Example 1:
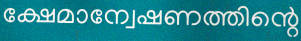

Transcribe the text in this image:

ക്ഷേമാന്വേഷണത്തിന്റെ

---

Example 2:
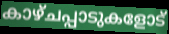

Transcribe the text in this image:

കാഴ്ചപ്പാടുകളോട്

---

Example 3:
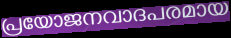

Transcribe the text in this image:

പ്രയോജനവാദപരമായ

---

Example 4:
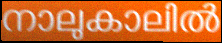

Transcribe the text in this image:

നാലുകാലിൽ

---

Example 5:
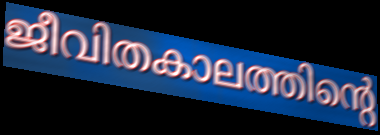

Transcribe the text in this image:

ജീവിതകാലത്തിന്റെ